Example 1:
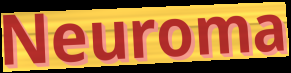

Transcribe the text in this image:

Neuroma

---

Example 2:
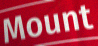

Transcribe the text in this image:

Mount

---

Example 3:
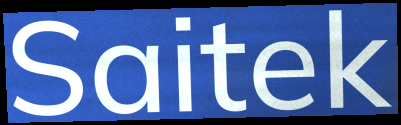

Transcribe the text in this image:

Saitek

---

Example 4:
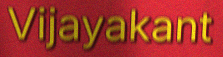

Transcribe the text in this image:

Vijayakant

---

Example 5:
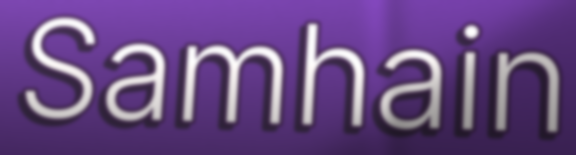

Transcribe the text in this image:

Samhain